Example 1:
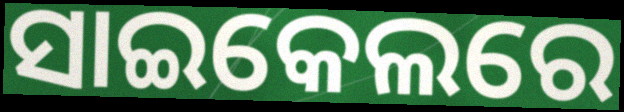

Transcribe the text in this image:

ସାଇକେଲରେ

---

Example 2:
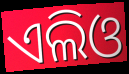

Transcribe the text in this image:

ଏଲିଓ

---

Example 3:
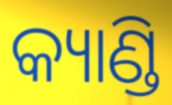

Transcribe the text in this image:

କ୍ୟାଣ୍ଡି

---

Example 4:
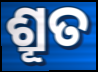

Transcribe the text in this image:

ଶ୍ରୂତ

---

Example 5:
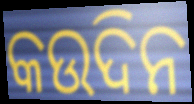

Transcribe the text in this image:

କଉଦିନ